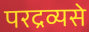
परद्रव्यसे